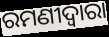
ରମଣୀଦ୍ୱାରା